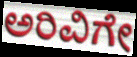
ಅರಿವಿಗೇ